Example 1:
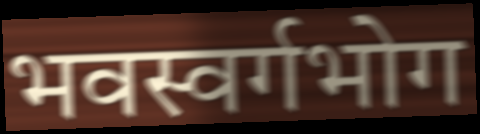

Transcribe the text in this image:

भवस्वर्गभोग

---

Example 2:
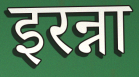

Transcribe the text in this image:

इरन्ना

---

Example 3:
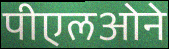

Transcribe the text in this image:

पीएलओने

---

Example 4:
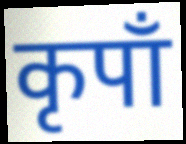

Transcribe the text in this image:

कृपाँ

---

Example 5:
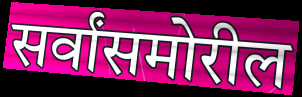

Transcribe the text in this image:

सर्वांसमोरील